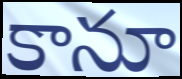
కానూ